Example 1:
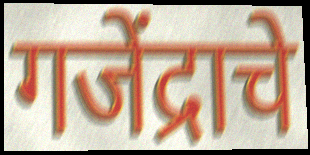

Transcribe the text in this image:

गजेंद्राचे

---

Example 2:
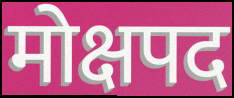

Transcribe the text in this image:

मोक्षपद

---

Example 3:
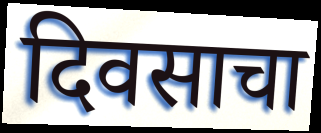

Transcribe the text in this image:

दिवसाचा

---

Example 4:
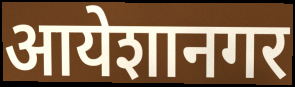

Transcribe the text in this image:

आयेशानगर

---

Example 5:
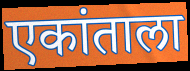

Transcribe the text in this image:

एकांताला